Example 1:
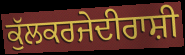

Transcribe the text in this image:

ਕੁੱਲਕਰਜੇਦੀਰਾਸ਼ੀ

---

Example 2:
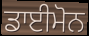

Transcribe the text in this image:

ਡਾਈਮੋਨ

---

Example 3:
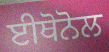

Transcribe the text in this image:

ਈਥੋਨੋਲ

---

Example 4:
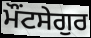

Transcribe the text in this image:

ਮੌਂਟਸੇਗੁਰ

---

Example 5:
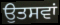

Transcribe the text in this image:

ਉਤਸਵਾਂ